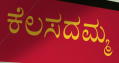
ಕೆಲಸದಮ್ಮ